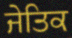
ਜੇਤਿਕ